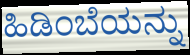
ಹಿಡಿಂಬೆಯನ್ನು